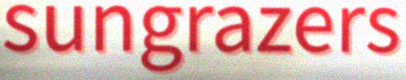
sungrazers